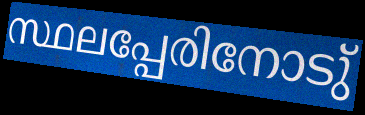
സ്ഥലപ്പേരിനോടു്